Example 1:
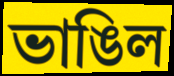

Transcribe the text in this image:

ভাঙিল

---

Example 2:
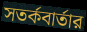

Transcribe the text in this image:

সতর্কবার্তার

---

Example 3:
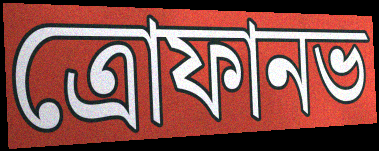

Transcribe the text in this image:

ত্রোফানভ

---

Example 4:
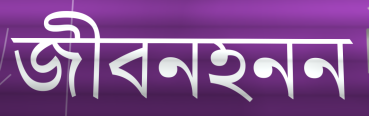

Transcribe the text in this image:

জীবনহনন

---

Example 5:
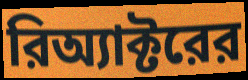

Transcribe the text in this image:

রিঅ্যাক্টরের